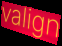
valign